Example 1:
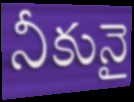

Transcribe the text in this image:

నీకునై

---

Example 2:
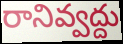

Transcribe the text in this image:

రానివ్వద్దు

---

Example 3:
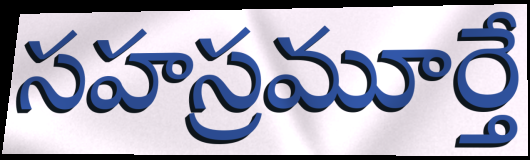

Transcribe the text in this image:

సహస్రమూర్తే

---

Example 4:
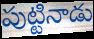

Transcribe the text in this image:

పుట్టినాడు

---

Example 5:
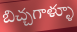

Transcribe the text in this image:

బిచ్చగాళ్ళూ